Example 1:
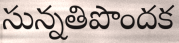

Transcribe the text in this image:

సున్నతిపొందక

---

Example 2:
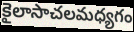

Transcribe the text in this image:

కైలాసాచలమధ్యగం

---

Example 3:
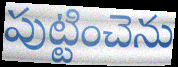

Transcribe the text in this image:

పుట్టించెను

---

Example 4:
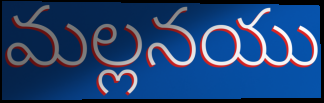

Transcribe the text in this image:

మల్లనయు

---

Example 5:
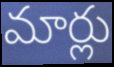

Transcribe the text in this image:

మార్లు